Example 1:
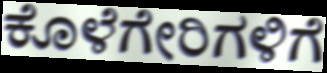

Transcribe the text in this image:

ಕೊಳೆಗೇರಿಗಳಿಗೆ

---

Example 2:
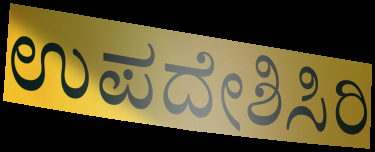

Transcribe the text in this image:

ಉಪದೇಶಿಸಿರಿ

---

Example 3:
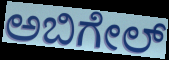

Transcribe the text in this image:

ಅಬಿಗೇಲ್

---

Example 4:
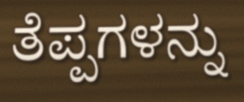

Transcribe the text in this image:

ತೆಪ್ಪಗಳನ್ನು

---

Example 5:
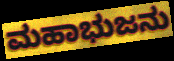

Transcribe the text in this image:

ಮಹಾಭುಜನು